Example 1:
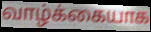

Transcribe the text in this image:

வாழ்க்கையாக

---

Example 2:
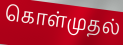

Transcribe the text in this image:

கொள்முதல்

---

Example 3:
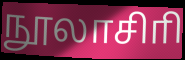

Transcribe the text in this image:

நூலாசிரி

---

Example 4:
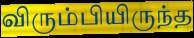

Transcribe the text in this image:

விரும்பியிருந்த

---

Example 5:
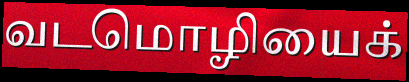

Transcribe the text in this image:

வடமொழியைக்